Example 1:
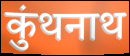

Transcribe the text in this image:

कुंथनाथ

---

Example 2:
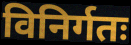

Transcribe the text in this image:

विनिर्गतः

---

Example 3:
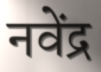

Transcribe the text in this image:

नवेंद्र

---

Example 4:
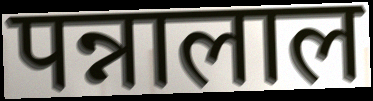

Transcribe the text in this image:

पन्नालाल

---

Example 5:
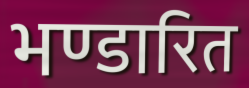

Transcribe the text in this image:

भण्डारित